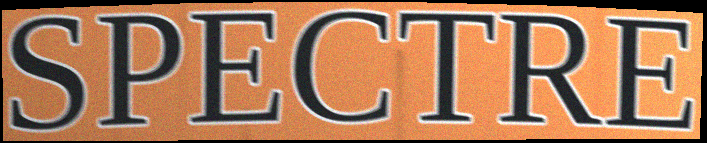
SPECTRE